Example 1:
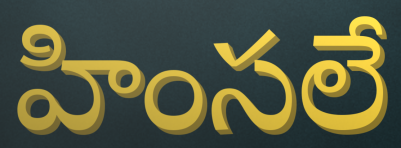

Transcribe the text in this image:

హింసలే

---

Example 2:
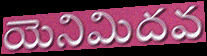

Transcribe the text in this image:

యెనిమిదవ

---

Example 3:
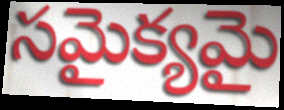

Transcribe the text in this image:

సమైక్యమై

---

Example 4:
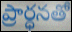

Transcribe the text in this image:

ప్రార్ధనతో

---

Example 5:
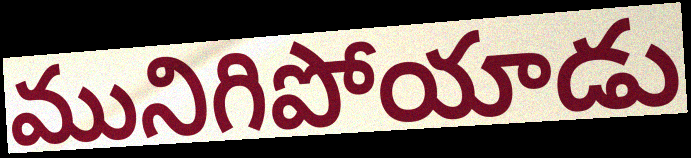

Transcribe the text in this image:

మునిగిపోయాడు